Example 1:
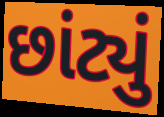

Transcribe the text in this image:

છાંટ્યું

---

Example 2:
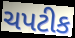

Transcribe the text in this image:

ચપટીક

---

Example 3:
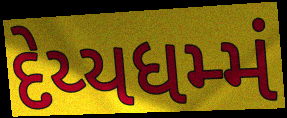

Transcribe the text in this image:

દેય્યધમ્મં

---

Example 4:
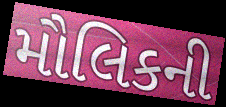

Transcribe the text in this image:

મૌલિકની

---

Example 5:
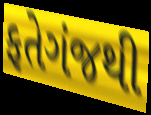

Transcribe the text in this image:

ફતેગંજથી